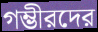
গম্ভীরদের